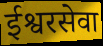
ईश्वरसेवा